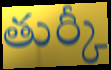
తుర్కీ